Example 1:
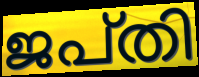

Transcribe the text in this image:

ജപ്‌തി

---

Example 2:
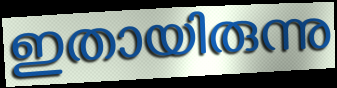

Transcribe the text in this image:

ഇതായിരുന്നു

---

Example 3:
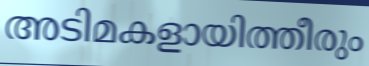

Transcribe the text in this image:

അടിമകളായിത്തീരും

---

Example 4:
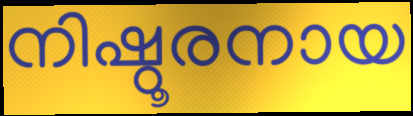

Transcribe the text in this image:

നിഷ്ഠൂരനായ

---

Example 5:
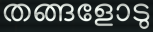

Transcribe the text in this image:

തങ്ങളോടു